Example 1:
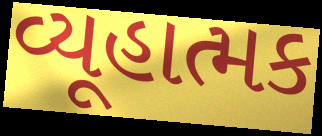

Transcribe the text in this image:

વ્યૂહાત્મક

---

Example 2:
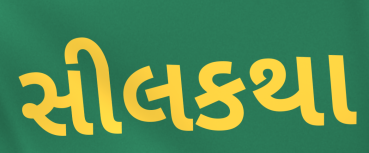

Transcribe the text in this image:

સીલકથા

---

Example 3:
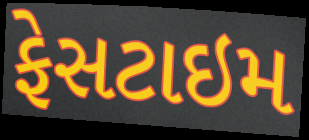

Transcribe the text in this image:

ફેસટાઇમ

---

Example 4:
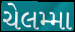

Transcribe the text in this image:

ચેલમ્મા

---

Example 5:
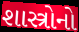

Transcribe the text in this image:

શાસ્ત્રોનો